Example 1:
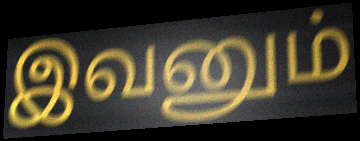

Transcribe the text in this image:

இவனும்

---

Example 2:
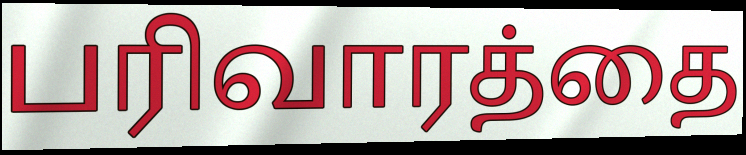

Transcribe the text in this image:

பரிவாரத்தை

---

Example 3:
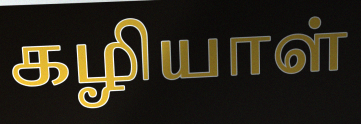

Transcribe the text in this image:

கழியாள்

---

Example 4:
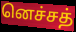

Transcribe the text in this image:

னெச்சத்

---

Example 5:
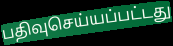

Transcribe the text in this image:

பதிவுசெய்யப்பட்டது